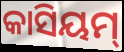
କାସିୟମ୍